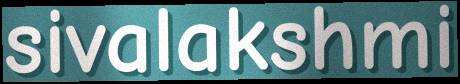
sivalakshmi